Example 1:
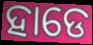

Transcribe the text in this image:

ହାଡେ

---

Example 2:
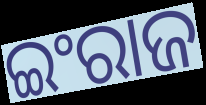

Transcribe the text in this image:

ଇଂରାଜ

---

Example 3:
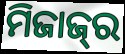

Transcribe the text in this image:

ମିଜାଜ୍‌ର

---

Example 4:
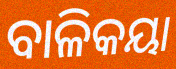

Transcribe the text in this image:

ବାଳିକୟା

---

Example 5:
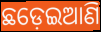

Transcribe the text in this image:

ଛଡ଼େଇଆଣି